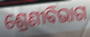
ଶ୍ରେଣୀବିଭାଗ